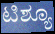
ಟಿಶ್ಯೂ